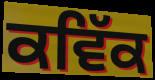
ਕਵਿੱਕ